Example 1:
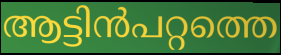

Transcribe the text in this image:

ആട്ടിൻപറ്റത്തെ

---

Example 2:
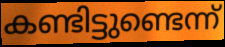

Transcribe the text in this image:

കണ്ടിട്ടുണ്ടെന്ന്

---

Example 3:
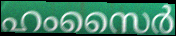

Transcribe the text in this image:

ഹംസൈർ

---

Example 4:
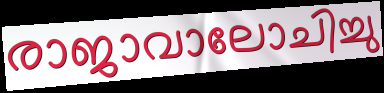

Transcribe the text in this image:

രാജാവാലോചിച്ചു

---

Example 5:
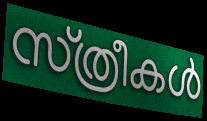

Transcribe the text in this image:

സ്‌ത്രീകൾ